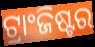
ଟ୍ରାଂଜିଷ୍ଟର